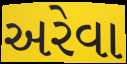
અરેવા